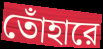
তোঁহারে